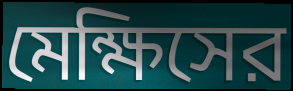
মেক্ষিসের